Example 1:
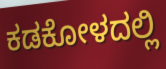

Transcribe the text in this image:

ಕಡಕೋಳದಲ್ಲಿ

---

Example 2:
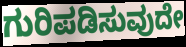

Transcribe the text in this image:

ಗುರಿಪಡಿಸುವುದೇ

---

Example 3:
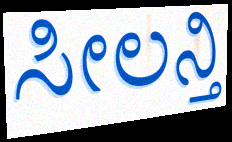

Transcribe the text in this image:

ಸೀಲನ್ತಿ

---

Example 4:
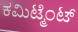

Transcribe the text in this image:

ಕಮಿಟ್ಮೆಂಟ್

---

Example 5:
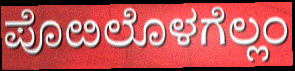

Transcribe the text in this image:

ಪೊೞಲೊಳಗೆಲ್ಲಂ